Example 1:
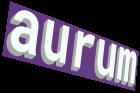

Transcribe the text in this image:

aurum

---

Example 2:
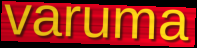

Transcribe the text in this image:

varuma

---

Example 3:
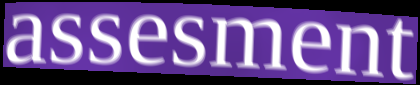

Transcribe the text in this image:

assesment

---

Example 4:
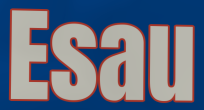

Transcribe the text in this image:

Esau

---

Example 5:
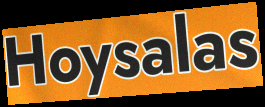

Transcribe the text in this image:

Hoysalas